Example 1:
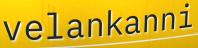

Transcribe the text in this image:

velankanni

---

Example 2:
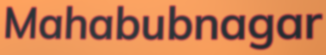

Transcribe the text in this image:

Mahabubnagar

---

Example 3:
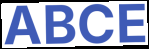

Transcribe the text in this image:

ABCE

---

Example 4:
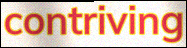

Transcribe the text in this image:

contriving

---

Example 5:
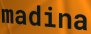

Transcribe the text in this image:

madina